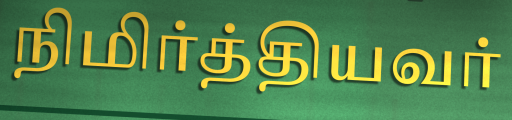
நிமிர்த்தியவர்